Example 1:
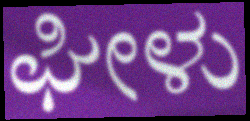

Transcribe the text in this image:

ಘೀಳು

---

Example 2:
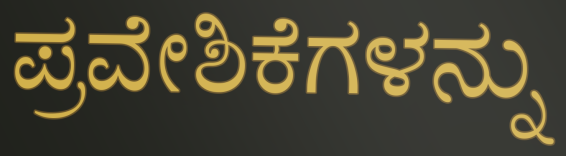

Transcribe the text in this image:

ಪ್ರವೇಶಿಕೆಗಳನ್ನು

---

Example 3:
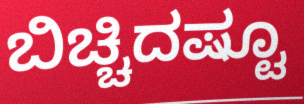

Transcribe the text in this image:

ಬಿಚ್ಚಿದಷ್ಟೂ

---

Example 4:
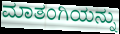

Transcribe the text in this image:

ಮಾತಂಗಿಯನ್ನು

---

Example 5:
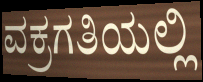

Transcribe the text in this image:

ವಕ್ರಗತಿಯಲ್ಲಿ